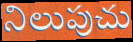
నిలుపుచు